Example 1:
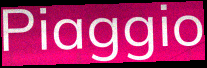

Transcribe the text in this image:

Piaggio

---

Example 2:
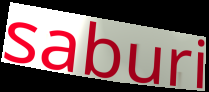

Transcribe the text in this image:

saburi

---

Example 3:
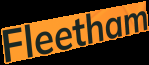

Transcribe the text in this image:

Fleetham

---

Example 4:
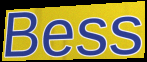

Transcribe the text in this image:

Bess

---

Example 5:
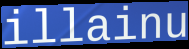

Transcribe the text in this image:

illainu